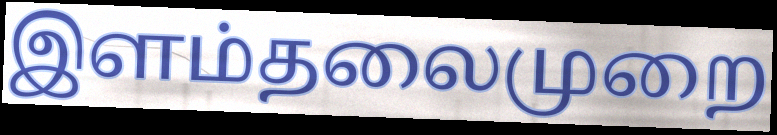
இளம்தலைமுறை